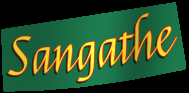
Sangathe